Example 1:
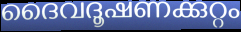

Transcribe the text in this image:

ദൈവദൂഷണക്കുറ്റം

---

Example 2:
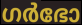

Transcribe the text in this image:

ഗർഭോ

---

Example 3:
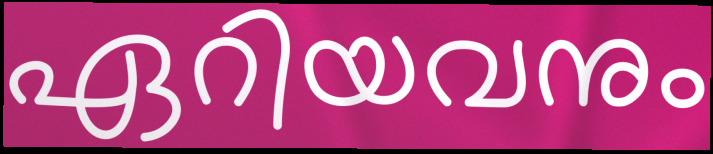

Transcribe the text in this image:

ഏറിയവനും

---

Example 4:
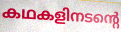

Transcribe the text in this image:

കഥകളിനടന്റെ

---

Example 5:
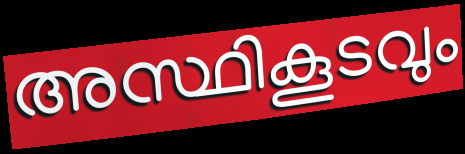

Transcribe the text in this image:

അസ്ഥികൂടവും